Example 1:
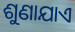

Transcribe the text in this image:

ଶୁଣାଯାଏ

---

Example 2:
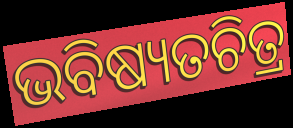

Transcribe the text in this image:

ଭବିଷ୍ୟତଚିତ୍ର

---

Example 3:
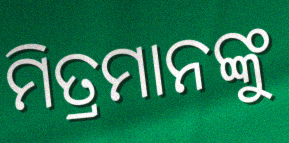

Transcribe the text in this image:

ମିତ୍ରମାନଙ୍କୁ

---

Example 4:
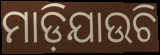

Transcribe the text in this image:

ମାଡ଼ିଯାଉଚି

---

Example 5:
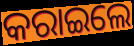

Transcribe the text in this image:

କରାଇଲେ